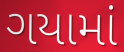
ગયામાં